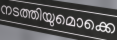
നടത്തിയുമൊക്കെ